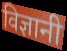
विज्ञानी